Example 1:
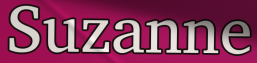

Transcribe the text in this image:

Suzanne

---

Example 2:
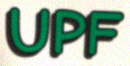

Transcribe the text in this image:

UPF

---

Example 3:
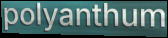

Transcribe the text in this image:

polyanthum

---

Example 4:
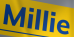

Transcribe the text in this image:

Millie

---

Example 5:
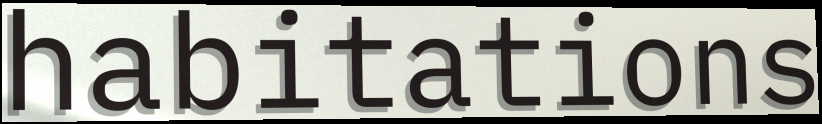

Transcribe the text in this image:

habitations